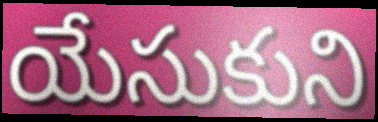
యేసుకుని